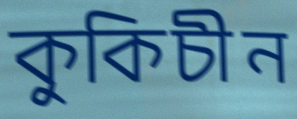
কুকিচীন